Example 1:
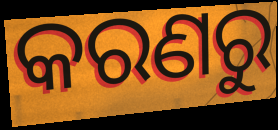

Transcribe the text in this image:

କରଣରୁ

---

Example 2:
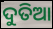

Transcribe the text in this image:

ଦୁତିଆ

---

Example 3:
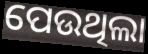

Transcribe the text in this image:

ପେଉଥିଲା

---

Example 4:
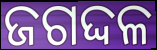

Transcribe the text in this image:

ଜଗଦ୍ଦଳ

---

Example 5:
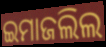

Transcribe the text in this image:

ଇମାଜଲିଲ